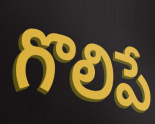
గొలిపే